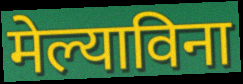
मेल्याविना